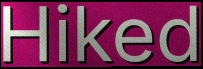
Hiked